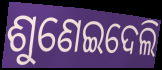
ଶୁଣେଇଦେଲି